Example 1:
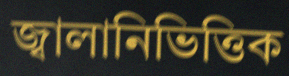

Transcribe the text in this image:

জ্বালানিভিত্তিক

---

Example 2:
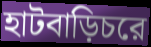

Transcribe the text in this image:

হাটবাড়িচরে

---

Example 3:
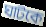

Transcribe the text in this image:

ঘাটকে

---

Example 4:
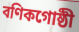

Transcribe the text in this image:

বণিকগোষ্ঠী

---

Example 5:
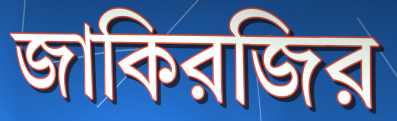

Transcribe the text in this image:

জাকিরজির